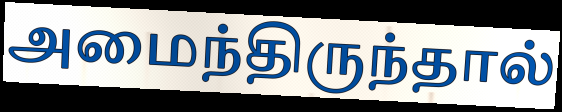
அமைந்திருந்தால்